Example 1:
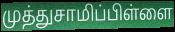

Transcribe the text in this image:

முத்துசாமிப்பிள்ளை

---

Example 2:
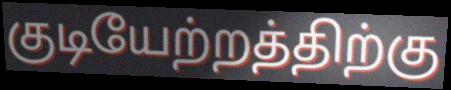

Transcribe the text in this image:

குடியேற்றத்திற்கு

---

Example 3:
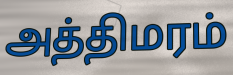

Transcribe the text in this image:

அத்திமரம்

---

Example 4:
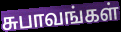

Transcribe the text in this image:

சுபாவங்கள்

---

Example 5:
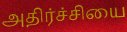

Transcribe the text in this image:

அதிர்ச்சியை